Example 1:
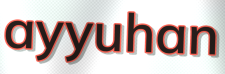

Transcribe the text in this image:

ayyuhan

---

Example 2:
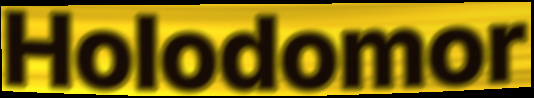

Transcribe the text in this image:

Holodomor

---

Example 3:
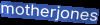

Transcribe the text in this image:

motherjones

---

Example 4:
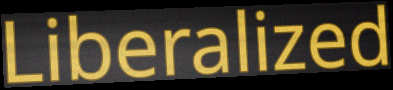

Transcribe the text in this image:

Liberalized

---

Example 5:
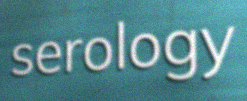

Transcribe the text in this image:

serology